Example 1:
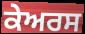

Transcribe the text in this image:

ਕੇਅਰਸ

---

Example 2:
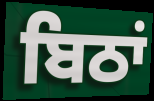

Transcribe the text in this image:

ਬਿਠਾਂ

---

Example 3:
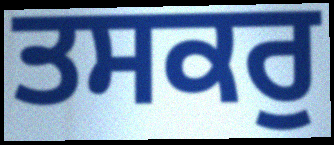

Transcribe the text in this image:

ਤਸਕਰੁ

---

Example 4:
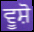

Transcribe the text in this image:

ਵੂਸ਼ੋ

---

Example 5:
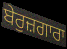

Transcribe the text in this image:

ਬੇਰੁਜ਼ਗਾਰਾ